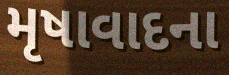
મૃષાવાદના